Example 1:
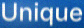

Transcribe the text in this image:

Unique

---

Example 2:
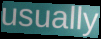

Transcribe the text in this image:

usually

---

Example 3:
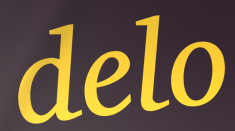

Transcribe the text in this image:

delo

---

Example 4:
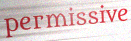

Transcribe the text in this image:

permissive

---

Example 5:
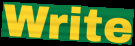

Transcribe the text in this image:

Write